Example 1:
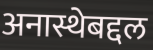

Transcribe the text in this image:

अनास्थेबद्दल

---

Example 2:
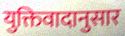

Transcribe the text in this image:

युक्तिवादानुसार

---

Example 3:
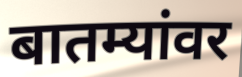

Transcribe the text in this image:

बातम्यांवर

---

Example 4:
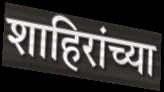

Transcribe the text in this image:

शाहिरांच्या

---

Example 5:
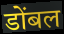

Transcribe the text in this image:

डोंबल